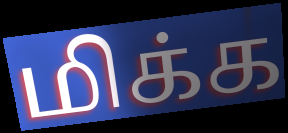
மிக்க